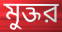
মুক্তর